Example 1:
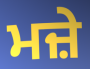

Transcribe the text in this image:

ਮਜ਼ੇ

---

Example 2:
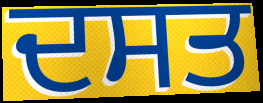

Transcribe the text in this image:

ਦਸਤ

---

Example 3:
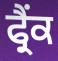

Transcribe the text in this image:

ਫ੍ਰੈਂਕ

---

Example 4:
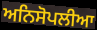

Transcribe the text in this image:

ਅਨਿਸੋਪਲੀਆ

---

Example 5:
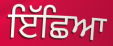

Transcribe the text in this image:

ਇੱਛਿਆ